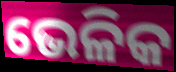
ଭେଳିକ